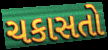
ચકાસતો